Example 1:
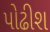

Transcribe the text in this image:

પોઢીશ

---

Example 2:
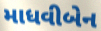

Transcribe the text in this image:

માધવીબેન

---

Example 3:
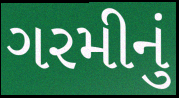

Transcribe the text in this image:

ગરમીનું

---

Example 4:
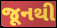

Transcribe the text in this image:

જૂનથી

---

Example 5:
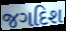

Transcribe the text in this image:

જગદિશ